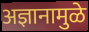
अज्ञानामुळे